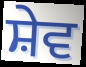
ਸ਼ੇਵ